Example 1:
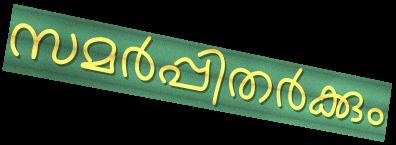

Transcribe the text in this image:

സമർപ്പിതർക്കും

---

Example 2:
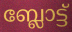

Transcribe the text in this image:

ബ്ലോട്ട്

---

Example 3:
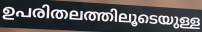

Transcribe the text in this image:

ഉപരിതലത്തിലൂടെയുള്ള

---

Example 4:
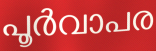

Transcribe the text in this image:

പൂർവാപര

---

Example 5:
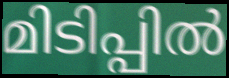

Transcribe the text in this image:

മിടിപ്പിൽ